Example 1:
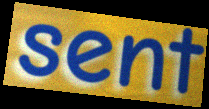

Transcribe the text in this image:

sent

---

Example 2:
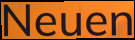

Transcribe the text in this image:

Neuen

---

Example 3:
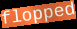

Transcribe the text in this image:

flopped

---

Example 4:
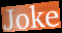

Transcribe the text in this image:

Joke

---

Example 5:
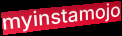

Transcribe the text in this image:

myinstamojo